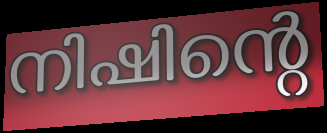
നിഷിന്റെ